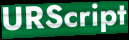
URScript